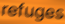
refuges